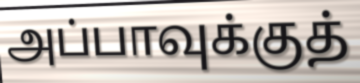
அப்பாவுக்குத்